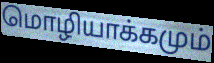
மொழியாக்கமும்